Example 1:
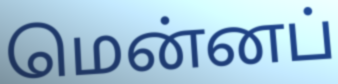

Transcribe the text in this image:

மென்னப்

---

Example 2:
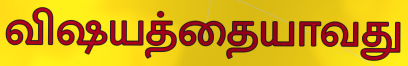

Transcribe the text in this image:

விஷயத்தையாவது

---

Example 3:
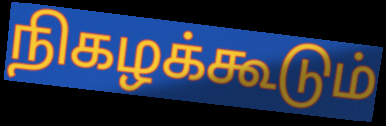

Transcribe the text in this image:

நிகழக்கூடும்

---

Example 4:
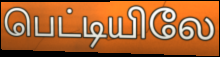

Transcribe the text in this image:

பெட்டியிலே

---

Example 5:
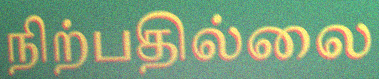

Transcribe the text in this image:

நிற்பதில்லை